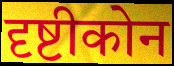
दृष्टीकोन